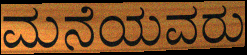
ಮನೆಯವರು